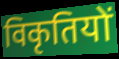
विकृतियों